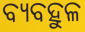
ବ୍ୟବହୁଳ